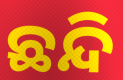
ଛନ୍ଦି